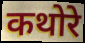
कथोरे